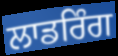
ਲਾਡਰਿੰਗ